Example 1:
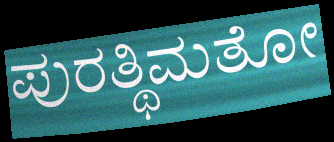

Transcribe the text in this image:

ಪುರತ್ಥಿಮತೋ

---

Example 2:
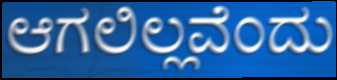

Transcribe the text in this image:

ಆಗಲಿಲ್ಲವೆಂದು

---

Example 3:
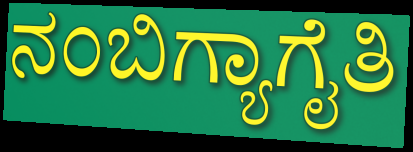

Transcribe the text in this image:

ನಂಬಿಗ್ಯಾಗೈತಿ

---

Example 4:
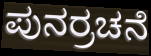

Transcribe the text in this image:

ಪುನರ್ರಚನೆ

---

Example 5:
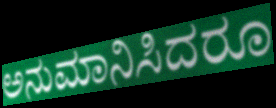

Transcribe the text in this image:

ಅನುಮಾನಿಸಿದರೂ